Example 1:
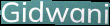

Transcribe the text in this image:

Gidwani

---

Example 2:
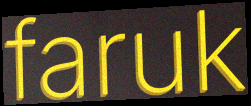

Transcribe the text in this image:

faruk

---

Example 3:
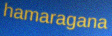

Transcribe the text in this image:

hamaragana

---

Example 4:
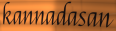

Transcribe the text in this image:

kannadasan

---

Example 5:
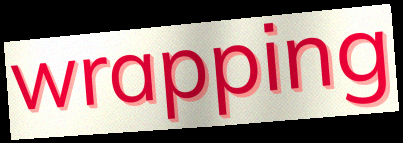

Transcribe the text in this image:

wrapping